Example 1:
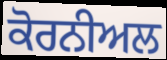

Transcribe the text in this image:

ਕੋਰਨੀਅਲ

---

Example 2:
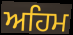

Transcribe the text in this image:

ਅਹਿਮ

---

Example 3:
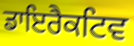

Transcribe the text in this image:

ਡਾਇਰੈਕਟਿਵ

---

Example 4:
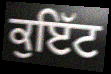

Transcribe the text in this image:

ਕੁਇੱਟ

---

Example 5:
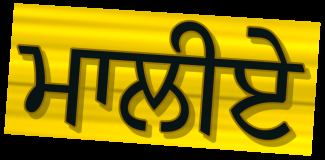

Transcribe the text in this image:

ਮਾਲੀਏ